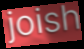
joish